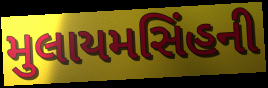
મુલાયમસિંહની